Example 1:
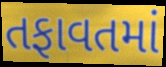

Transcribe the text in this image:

તફાવતમાં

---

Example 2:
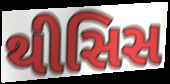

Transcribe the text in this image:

થીસિસ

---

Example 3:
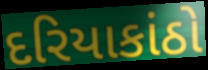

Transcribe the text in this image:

દરિયાકાંઠો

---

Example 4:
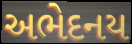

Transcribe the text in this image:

અભેદનય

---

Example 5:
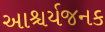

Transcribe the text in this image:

આશ્ચર્યજનક